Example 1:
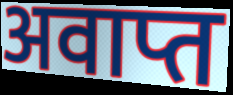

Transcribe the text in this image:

अवाप्त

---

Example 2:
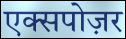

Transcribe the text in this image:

एक्सपोज़र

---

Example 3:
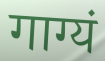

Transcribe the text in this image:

गाग्यं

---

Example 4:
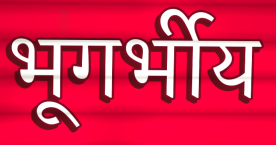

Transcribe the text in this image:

भूगर्भीय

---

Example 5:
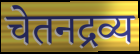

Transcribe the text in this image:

चेतनद्रव्य